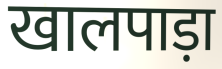
खालपाड़ा